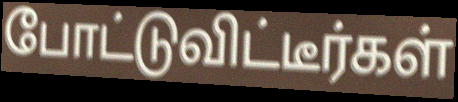
போட்டுவிட்டீர்கள்